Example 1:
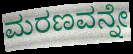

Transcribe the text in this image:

ಮರಣವನ್ನೇ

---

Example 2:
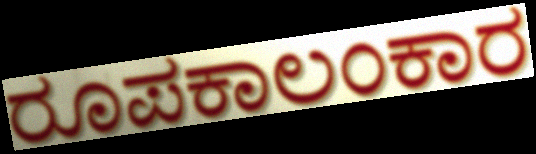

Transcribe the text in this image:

ರೂಪಕಾಲಂಕಾರ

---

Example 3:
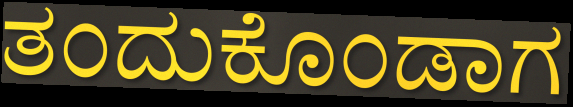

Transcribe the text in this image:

ತಂದುಕೊಂಡಾಗ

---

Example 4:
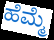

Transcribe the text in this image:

ಹೆಮ್ಮೆ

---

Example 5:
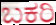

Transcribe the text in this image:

ಬಕರಿ